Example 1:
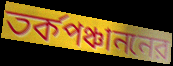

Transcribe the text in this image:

তর্কপঞ্চাননের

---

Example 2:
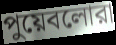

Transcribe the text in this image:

পুয়েবলোরা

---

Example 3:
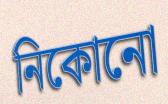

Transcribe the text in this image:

নিকোনো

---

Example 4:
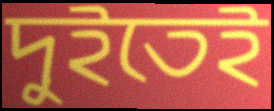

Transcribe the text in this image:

দুইতেই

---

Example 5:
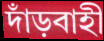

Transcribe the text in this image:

দাঁড়বাহী